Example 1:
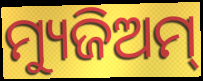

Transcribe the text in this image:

ମ୍ୟୁଜିଅମ୍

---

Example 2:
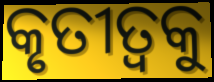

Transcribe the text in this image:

କୃତୀତ୍ଵକୁ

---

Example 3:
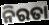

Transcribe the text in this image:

ନିରତା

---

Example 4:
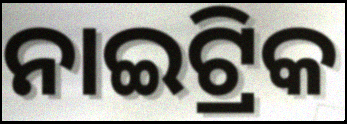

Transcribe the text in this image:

ନାଇଟ୍ରିକ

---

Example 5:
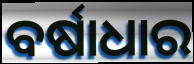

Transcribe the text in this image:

ବର୍ଷାଧାର